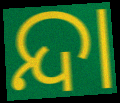
ନ୍ଦା